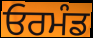
ਓਰਮੰਡ